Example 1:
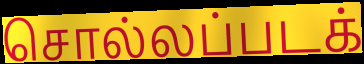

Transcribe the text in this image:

சொல்லப்படக்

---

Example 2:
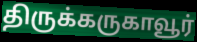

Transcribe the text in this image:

திருக்கருகாவூர்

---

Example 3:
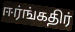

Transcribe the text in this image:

ஈர்ங்கதிர்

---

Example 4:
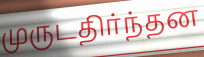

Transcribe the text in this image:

முருடதிர்ந்தன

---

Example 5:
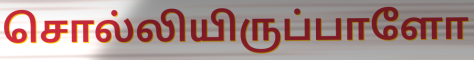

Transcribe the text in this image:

சொல்லியிருப்பாளோ